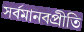
সর্বমানবপ্রীতি